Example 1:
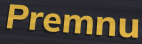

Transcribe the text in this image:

Premnu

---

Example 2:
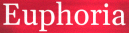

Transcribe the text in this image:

Euphoria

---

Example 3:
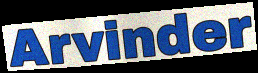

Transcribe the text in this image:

Arvinder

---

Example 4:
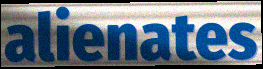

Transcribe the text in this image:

alienates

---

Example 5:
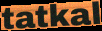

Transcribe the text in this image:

tatkal